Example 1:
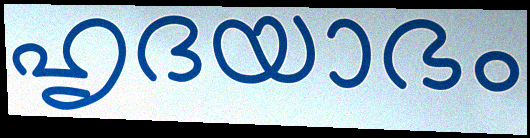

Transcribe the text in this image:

ഹൃദയാഭം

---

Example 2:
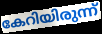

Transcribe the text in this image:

കേറിയിരുന്ന്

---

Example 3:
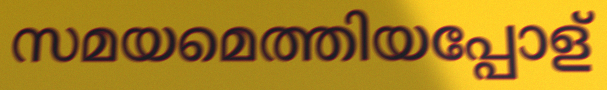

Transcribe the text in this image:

സമയമെത്തിയപ്പോള്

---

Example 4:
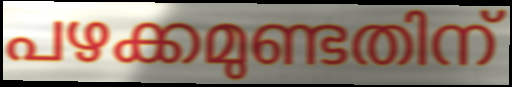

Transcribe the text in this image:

പഴക്കമുണ്ടതിന്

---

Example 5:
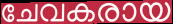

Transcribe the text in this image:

ചേവകരായ